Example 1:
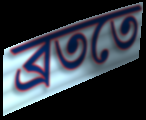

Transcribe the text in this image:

ব্রততে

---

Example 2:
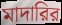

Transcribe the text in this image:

মাদারির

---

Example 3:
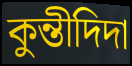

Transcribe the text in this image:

কুন্তীদিদা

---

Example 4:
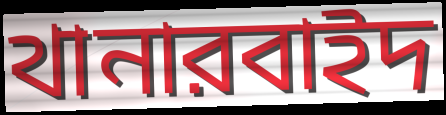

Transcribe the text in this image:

থানারবাইদ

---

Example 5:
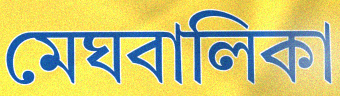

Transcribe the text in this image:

মেঘবালিকা